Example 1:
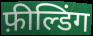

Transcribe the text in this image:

फ़ील्डिंग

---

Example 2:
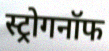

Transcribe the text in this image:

स्ट्रोगनॉफ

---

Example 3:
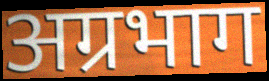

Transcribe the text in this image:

अग्रभाग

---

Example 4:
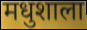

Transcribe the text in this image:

मधुशाला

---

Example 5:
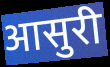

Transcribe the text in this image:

आसुरी